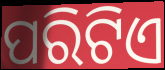
ପରିଟିଏ